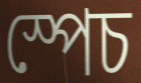
স্পেচ